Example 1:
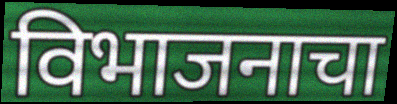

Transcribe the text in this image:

विभाजनाचा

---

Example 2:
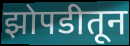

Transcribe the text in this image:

झोपडीतून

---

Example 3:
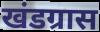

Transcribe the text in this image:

खंडग्रास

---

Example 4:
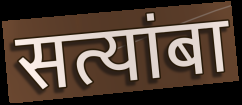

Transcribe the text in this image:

सत्यांबा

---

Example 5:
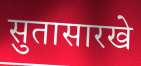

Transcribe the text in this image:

सुतासारखे